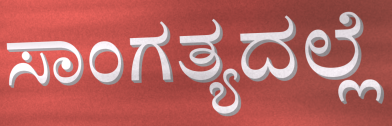
ಸಾಂಗತ್ಯದಲ್ಲೆ